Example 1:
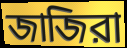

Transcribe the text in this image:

জাজিরা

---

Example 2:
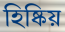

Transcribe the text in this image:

হিষ্কিয়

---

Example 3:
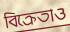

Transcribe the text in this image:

বিক্রেতাও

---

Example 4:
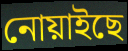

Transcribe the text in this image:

নোয়াইছে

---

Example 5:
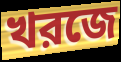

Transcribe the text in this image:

খরজে